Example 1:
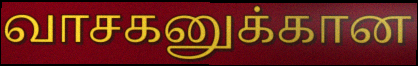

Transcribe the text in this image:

வாசகனுக்கான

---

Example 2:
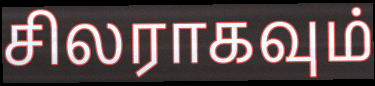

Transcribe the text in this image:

சிலராகவும்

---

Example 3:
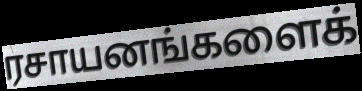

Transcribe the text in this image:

ரசாயனங்களைக்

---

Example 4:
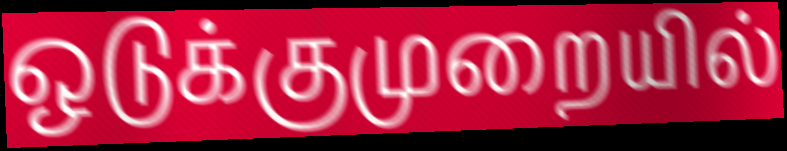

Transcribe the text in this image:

ஒடுக்குமுறையில்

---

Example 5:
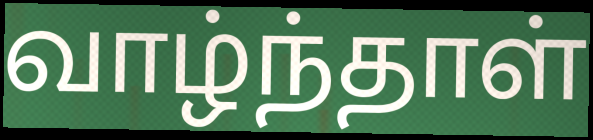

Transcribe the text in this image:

வாழ்ந்தாள்